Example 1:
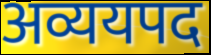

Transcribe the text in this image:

अव्ययपद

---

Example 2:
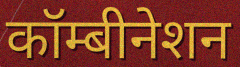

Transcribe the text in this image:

कॉम्बीनेशन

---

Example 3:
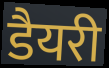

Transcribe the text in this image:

डैयरी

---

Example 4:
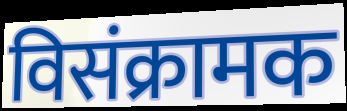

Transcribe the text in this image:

विसंक्रामक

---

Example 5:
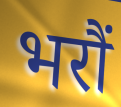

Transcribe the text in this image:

भरौं